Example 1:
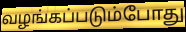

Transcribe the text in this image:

வழங்கப்படும்போது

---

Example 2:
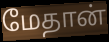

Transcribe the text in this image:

மேதான்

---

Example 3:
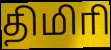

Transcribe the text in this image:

திமிரி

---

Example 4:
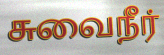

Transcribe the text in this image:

சுவைநீர்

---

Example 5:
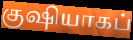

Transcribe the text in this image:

குஷியாகப்